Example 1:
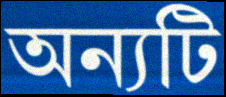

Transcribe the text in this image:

অন্যটি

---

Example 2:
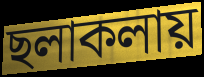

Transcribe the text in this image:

ছলাকলায়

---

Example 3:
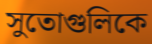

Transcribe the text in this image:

সুতোগুলিকে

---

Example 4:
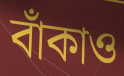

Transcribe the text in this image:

বাঁকাও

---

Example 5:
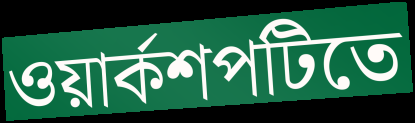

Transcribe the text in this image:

ওয়ার্কশপটিতে